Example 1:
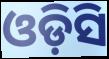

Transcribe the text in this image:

ଓଡ଼ିସି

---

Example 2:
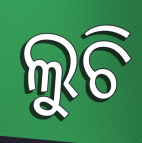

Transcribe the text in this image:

ଲୁଚି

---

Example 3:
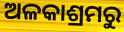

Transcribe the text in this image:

ଅଳକାଶ୍ରମରୁ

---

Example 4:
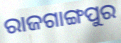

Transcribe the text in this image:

ରାଜଗାଙ୍ଗପୁର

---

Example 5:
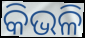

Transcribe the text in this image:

କିଭଳି